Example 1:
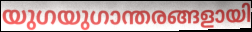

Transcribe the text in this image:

യുഗയുഗാന്തരങ്ങളായി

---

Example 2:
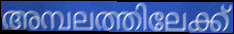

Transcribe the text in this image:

അമ്പലത്തിലേക്ക്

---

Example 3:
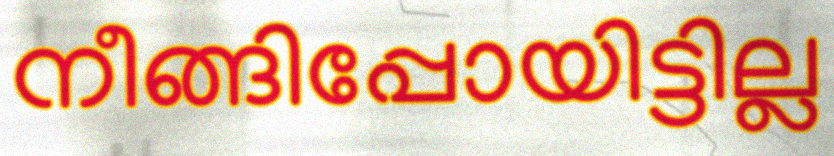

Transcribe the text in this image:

നീങ്ങിപ്പോയിട്ടില്ല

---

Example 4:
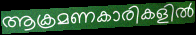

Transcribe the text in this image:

ആക്രമണകാരികളിൽ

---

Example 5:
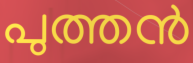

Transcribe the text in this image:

പുത്തൻ